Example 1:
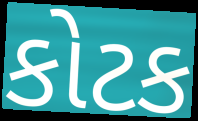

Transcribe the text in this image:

કોટક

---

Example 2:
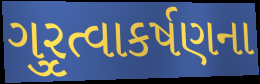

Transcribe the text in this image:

ગુરૃત્વાકર્ષણના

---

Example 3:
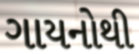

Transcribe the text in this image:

ગાયનોથી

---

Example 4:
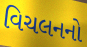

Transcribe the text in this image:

વિચલનનો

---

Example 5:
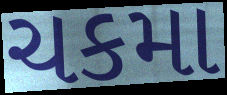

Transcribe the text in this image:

ચકમા